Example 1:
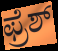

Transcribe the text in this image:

ಫ್ರೆಶ್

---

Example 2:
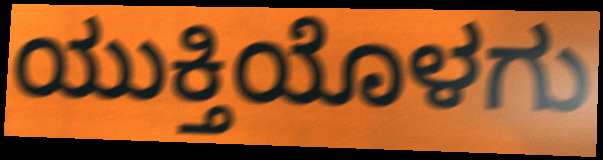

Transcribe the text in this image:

ಯುಕ್ತಿಯೊಳಗು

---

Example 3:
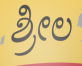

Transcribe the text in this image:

ಶ್ರೀಲ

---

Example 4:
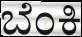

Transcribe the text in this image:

ಬೆಂಕಿ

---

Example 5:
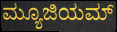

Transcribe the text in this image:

ಮ್ಯೂಜಿಯಮ್